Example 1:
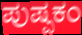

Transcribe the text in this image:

ಪುಷ್ಪಕಂ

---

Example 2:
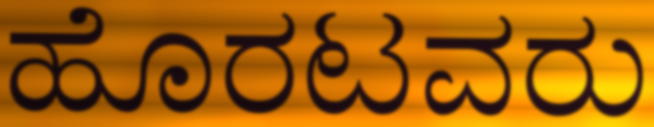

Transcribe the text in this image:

ಹೊರಟವರು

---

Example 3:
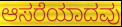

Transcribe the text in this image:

ಆಸರೆಯಾದವು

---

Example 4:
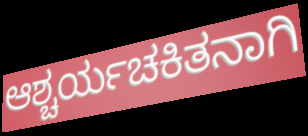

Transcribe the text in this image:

ಆಶ್ಚರ್ಯಚಕಿತನಾಗಿ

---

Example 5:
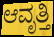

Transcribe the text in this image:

ಆವೃತ್ತಿ